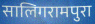
सालिगरामपुरा